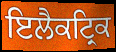
ਇਲੈਕਟ੍ਰਿਕ